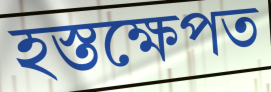
হস্তক্ষেপত